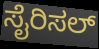
ಸೈರಿಸಲ್